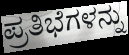
ಪ್ರತಿಭೆಗಳನ್ನು